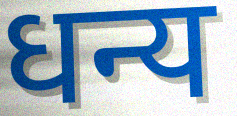
धन्य